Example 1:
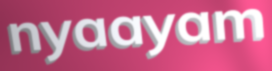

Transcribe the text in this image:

nyaayam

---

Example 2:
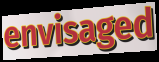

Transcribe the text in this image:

envisaged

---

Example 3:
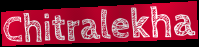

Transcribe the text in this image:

Chitralekha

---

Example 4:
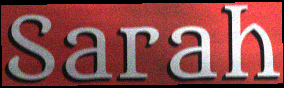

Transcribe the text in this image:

Sarah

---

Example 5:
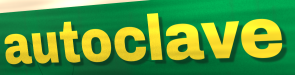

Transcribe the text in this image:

autoclave